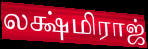
லக்ஷ்மிராஜ்